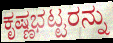
ಕೃಷ್ಣಭಟ್ಟರನ್ನು